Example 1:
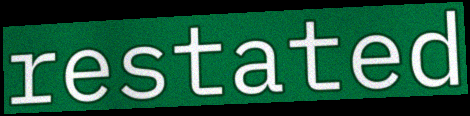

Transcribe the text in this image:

restated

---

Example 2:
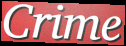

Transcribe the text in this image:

Crime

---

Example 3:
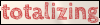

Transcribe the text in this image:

totalizing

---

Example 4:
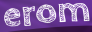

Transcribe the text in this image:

erom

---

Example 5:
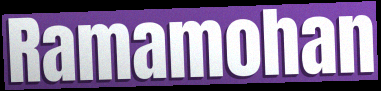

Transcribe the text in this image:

Ramamohan